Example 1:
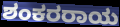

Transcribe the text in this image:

ಶಂಕರರಾಯ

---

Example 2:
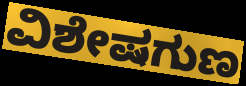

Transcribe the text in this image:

ವಿಶೇಷಗುಣ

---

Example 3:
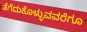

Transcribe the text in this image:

ತೆಗೆದುಕೊಳ್ಳುವವರೆಗೂ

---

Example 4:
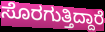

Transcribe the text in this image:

ಸೊರಗುತ್ತಿದ್ದಾರೆ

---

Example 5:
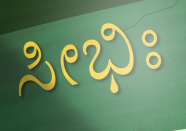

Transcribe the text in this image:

ಸೀಭಿಃ